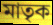
মাতৃক